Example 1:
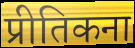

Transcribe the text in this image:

प्रीतिकना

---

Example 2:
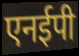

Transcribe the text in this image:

एनईपी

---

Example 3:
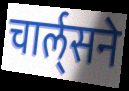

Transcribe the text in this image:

चार्ल्सने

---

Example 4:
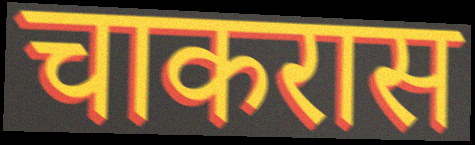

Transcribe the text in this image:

चाकरास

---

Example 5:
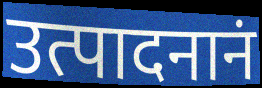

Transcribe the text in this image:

उत्पादनानं